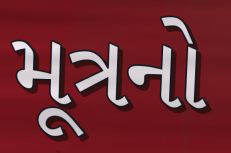
મૂત્રનો